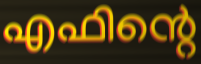
എഫിന്റെ